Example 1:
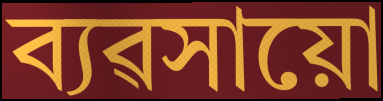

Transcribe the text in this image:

ব্যৱসায়ো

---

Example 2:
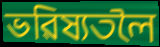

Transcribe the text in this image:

ভৱিষ্যতলৈ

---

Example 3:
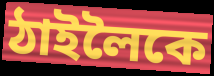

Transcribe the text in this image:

ঠাইলৈকে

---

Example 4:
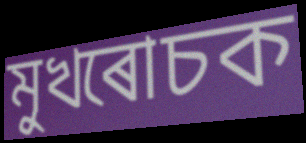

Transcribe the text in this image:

মুখৰোচক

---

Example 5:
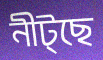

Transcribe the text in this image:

নীট্‌ছে